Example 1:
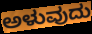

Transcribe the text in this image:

ಅಳುವುದು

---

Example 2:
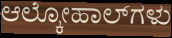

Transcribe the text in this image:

ಆಲ್ಕೋಹಾಲ್‌ಗಳು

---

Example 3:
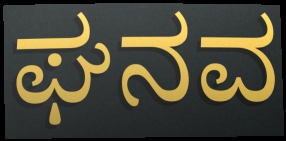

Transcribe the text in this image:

ಘನವ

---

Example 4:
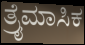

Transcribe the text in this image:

ತ್ರೈಮಾಸಿಕ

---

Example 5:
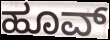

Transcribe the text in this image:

ಹೂವ್